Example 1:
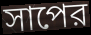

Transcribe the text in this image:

সাপের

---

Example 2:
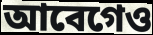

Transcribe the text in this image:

আবেগেও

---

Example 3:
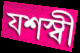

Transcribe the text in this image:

যশস্বী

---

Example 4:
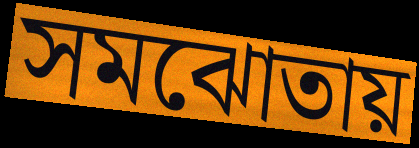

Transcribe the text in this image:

সমঝোতায়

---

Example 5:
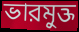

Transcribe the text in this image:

ভারমুক্ত